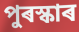
পুৰস্কাৰ